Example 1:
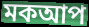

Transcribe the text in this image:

মকআপ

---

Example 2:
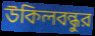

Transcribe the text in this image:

উকিলবন্ধুর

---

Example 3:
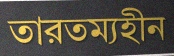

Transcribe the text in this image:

তারতম্যহীন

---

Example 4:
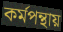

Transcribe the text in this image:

কর্মপন্থায়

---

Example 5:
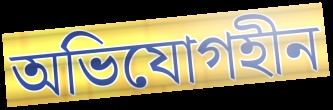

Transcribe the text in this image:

অভিযোগহীন